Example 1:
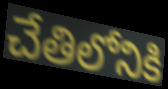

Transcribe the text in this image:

చేతిలోనికి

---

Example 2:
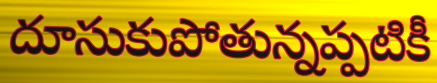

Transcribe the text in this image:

దూసుకుపోతున్నప్పటికీ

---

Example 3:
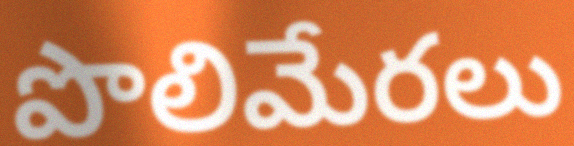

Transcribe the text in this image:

పొలిమేరలు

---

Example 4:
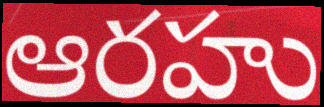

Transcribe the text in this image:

ఆరహు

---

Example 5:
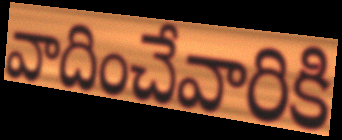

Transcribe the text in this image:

వాదించేవారికి